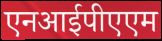
एनआईपीएएम